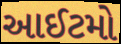
આઈટમો